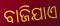
ବାଜିଯାଏ